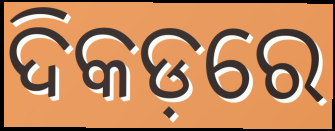
ଦିକଡ଼ରେ